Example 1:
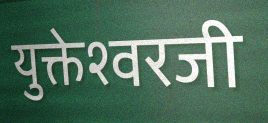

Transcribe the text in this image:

युक्तेश्वरजी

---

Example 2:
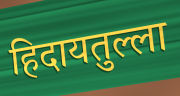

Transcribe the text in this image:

हिदायतुल्ला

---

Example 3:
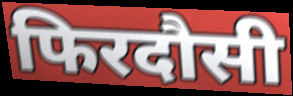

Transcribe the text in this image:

फिरदौसी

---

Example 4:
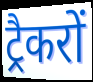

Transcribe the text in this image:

ट्रैकरों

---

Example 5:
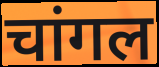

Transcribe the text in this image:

चांगल